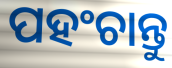
ପହଂଚାନ୍ତୁ